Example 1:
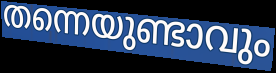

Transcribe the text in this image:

തന്നെയുണ്ടാവും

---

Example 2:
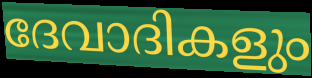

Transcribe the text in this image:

ദേവാദികളും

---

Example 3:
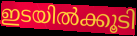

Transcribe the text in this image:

ഇടയിൽക്കൂടി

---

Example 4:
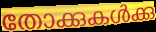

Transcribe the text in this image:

തോക്കുകൾക്കു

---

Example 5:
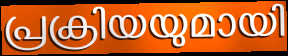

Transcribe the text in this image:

പ്രക്രിയയുമായി